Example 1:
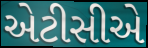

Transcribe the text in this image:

એટીસીએ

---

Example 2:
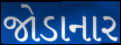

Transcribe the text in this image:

જોડાનાર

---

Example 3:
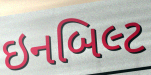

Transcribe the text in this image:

ઇનબિલ્ટ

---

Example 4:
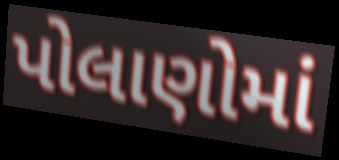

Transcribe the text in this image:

પોલાણોમાં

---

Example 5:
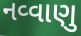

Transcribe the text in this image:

નવ્વાણુ